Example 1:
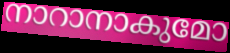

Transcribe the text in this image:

നാറാനാകുമോ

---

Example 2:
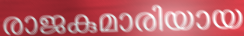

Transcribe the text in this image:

രാജകുമാരിയായ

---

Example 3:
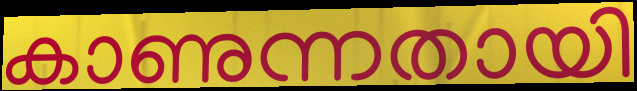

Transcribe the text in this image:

കാണുന്നതായി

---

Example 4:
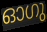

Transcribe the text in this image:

ഓഗു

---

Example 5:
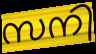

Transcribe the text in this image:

സനി